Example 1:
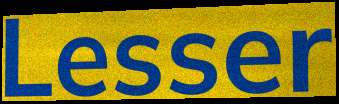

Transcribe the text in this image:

Lesser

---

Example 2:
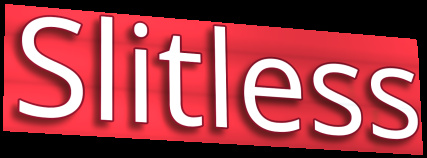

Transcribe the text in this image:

Slitless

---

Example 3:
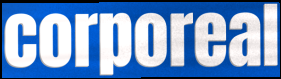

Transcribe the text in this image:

corporeal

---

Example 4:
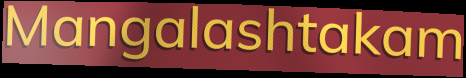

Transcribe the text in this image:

Mangalashtakam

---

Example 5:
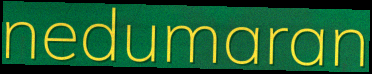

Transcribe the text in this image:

nedumaran